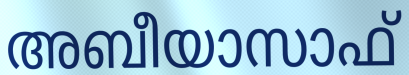
അബീയാസാഫ്